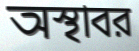
অস্থাবর